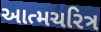
આત્મચરિત્ર